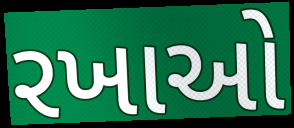
રખાઓ